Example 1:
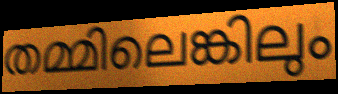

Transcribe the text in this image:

തമ്മിലെങ്കിലും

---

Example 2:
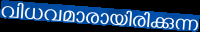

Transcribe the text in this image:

വിധവമാരായിരിക്കുന്ന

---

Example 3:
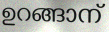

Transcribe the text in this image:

ഉറങ്ങാന്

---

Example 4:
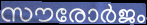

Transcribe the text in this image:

സൗരോർജം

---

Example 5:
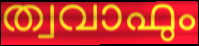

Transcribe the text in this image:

ത്വവാഫും